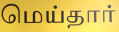
மெய்தார்